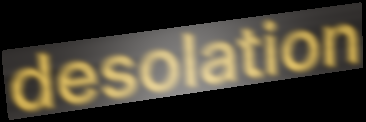
desolation